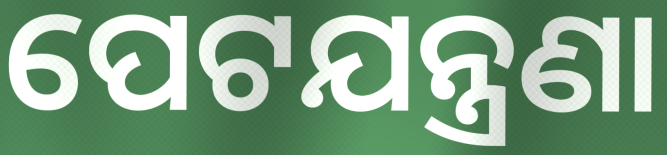
ପେଟଯନ୍ତ୍ରଣା